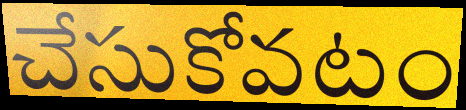
చేసుకోవటం